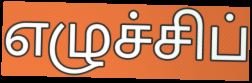
எழுச்சிப்